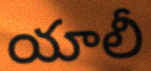
యాలీ